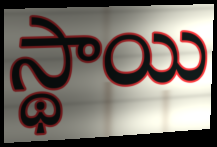
స్థాయి